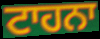
ਟਾਹਨਾ